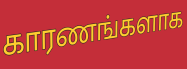
காரணங்களாக